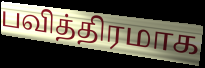
பவித்திரமாக